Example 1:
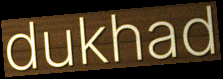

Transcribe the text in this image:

dukhad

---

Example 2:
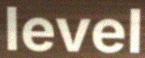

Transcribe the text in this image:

level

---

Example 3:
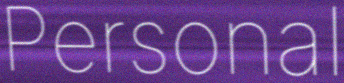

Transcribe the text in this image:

Personal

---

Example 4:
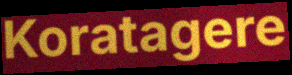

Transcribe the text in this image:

Koratagere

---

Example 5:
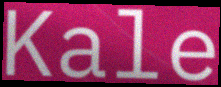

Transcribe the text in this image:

Kale